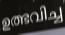
ഉത്ഭവിച്ച